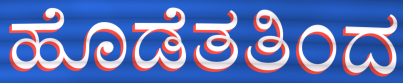
ಹೊಡೆತತಿಂದ